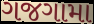
ગજગામા